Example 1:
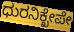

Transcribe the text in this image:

ಧುರನಿಕ್ಖೇಪೇ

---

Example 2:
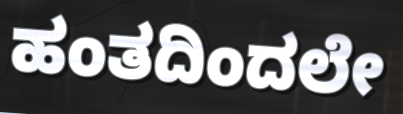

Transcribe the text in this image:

ಹಂತದಿಂದಲೇ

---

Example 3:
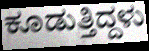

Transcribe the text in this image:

ಕೂಡುತ್ತಿದ್ದಳು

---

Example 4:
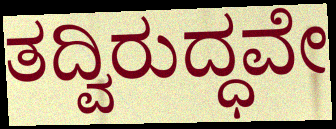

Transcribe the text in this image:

ತದ್ವಿರುದ್ಧವೇ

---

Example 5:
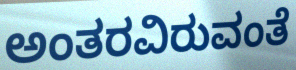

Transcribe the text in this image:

ಅಂತರವಿರುವಂತೆ